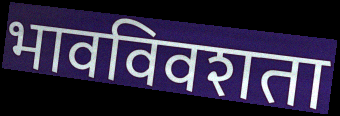
भावविवशता